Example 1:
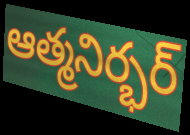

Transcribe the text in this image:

ఆత్మనిర్భర్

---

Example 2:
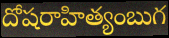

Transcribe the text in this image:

దోషరాహిత్యంబుగ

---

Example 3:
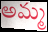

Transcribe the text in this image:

అమ్మ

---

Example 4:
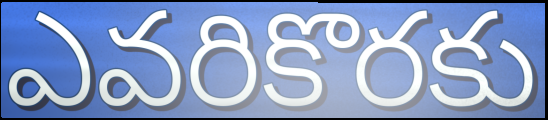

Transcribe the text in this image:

ఎవరికొరకు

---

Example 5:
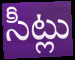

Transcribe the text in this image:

సీట్లు